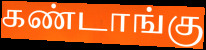
கண்டாங்கு